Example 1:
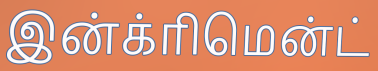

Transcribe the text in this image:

இன்க்ரிமென்ட்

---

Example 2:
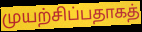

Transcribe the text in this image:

முயற்சிப்பதாகத்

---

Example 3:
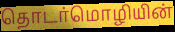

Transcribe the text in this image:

தொடர்மொழியின்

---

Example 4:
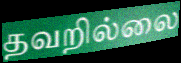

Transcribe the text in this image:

தவறில்லை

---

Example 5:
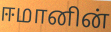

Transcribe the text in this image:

ஈமானின்